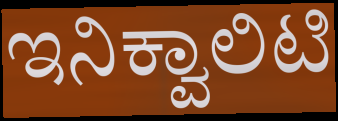
ಇನಿಕ್ವಾಲಿಟಿ